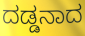
ದಡ್ಡನಾದ